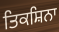
ਤਿਕਸ਼ਿਨਾ